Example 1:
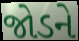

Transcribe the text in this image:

જોડને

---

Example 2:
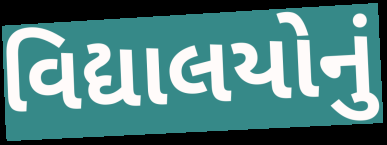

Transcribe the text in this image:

વિદ્યાલયોનું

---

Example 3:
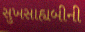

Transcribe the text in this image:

સુખસાહ્યબીની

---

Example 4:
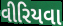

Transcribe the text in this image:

વીરિયવા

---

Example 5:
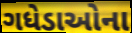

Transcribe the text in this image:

ગધેડાઓના